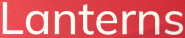
Lanterns